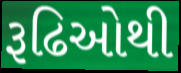
રૂઢિઓથી